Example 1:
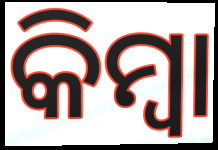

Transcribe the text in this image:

କିମ୍ଵା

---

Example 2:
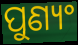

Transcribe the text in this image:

ପୁଣ୍ୟଂ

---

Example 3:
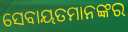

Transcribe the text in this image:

ସେବାୟତମାନଙ୍କର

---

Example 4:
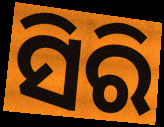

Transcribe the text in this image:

ସିରି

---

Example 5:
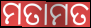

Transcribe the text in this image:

ମତାମତ